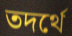
তদর্থে